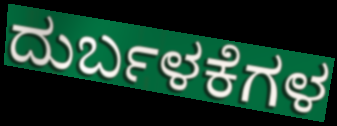
ದುರ್ಬಳಕೆಗಳ